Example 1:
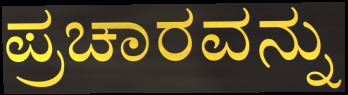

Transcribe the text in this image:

ಪ್ರಚಾರವನ್ನು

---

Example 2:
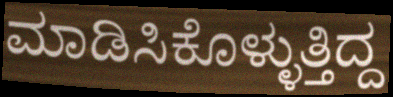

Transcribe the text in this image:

ಮಾಡಿಸಿಕೊಳ್ಳುತ್ತಿದ್ದ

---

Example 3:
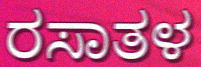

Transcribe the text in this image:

ರಸಾತಳ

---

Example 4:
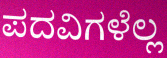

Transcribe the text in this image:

ಪದವಿಗಳೆಲ್ಲ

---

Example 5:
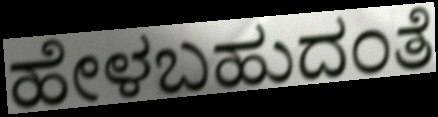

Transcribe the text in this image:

ಹೇಳಬಹುದಂತೆ